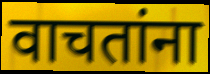
वाचतांना